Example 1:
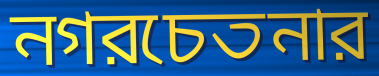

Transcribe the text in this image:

নগরচেতনার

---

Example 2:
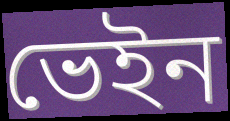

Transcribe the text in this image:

ভেইন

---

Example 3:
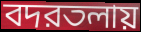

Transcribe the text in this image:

বদরতলায়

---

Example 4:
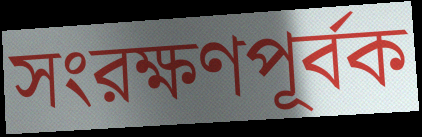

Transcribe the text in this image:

সংরক্ষণপূর্বক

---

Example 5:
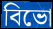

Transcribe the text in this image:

বিভো